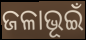
ଜଳାଭୂଇଁ